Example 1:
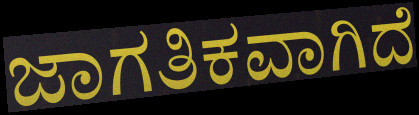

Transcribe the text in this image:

ಜಾಗತಿಕವಾಗಿದೆ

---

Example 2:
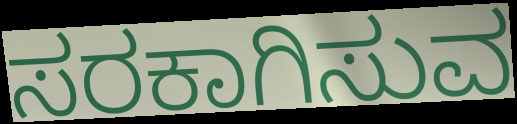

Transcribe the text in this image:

ಸರಕಾಗಿಸುವ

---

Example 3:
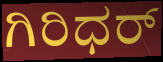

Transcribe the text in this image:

ಗಿರಿಧರ್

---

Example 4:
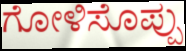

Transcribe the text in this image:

ಗೋಳಿಸೊಪ್ಪು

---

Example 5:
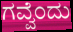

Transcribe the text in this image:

ಗವ್ವೆಂದು